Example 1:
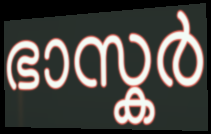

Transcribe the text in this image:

ഭാസ്കർ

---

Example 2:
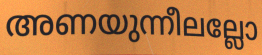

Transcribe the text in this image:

അണയുന്നീലല്ലോ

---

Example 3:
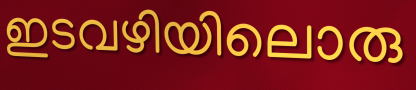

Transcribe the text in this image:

ഇടവഴിയിലൊരു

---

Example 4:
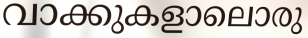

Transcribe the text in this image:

വാക്കുകളാലൊരു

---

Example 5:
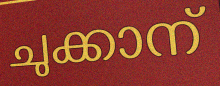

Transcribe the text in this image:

ചുക്കാന്